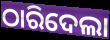
ଠାରିଦେଲା